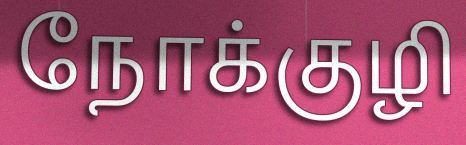
நோக்குழி